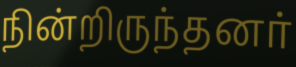
நின்றிருந்தனர்